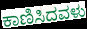
ಕಾಣಿಸಿದವಳು